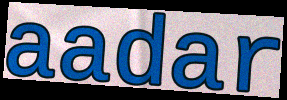
aadar